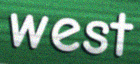
west